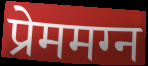
प्रेममग्न